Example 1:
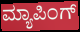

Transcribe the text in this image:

ಮ್ಯಾಪಿಂಗ್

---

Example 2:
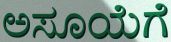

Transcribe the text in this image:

ಅಸೂಯೆಗೆ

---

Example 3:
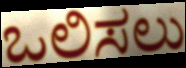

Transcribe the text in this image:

ಒಲಿಸಲು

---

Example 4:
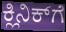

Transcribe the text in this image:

ಕ್ಲಿನಿಕ್‍ಗೆ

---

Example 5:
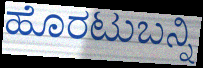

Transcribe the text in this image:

ಹೊರಟುಬನ್ನಿ